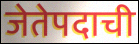
जेतेपदाची